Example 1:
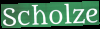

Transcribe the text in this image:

Scholze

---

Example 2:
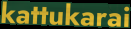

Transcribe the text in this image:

kattukarai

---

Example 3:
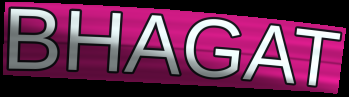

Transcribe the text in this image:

BHAGAT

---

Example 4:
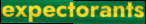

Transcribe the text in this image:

expectorants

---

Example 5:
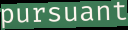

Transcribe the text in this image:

pursuant